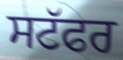
ਸਟੱਫਰ